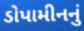
ડોપામીનનું